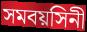
সমবয়সিনী